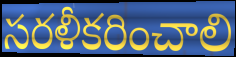
సరళీకరించాలి